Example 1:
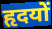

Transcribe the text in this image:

हृदयों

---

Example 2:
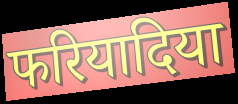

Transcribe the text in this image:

फरियादिया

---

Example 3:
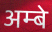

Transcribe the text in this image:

अम्बे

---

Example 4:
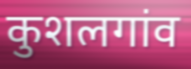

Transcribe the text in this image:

कुशलगांव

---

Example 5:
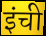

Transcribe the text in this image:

इंची